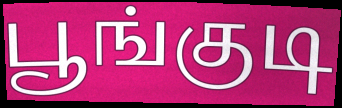
பூங்குடி